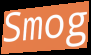
Smog